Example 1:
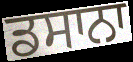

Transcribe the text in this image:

ਡਸਾਨਾ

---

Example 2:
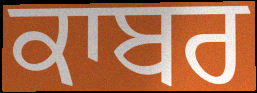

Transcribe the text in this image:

ਕਾਬਰ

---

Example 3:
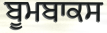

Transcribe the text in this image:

ਬੂਮਬਾਕਸ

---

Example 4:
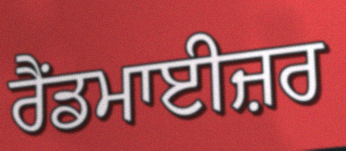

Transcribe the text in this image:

ਰੈਂਡਮਾਈਜ਼ਰ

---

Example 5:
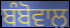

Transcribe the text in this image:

ਬੰਬੋਵਾਲ